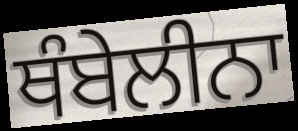
ਥੰਬੇਲੀਨਾ